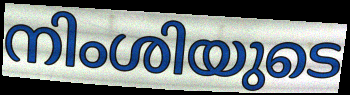
നിംശിയുടെ